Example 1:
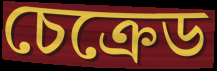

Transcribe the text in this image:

চেক্ৰেড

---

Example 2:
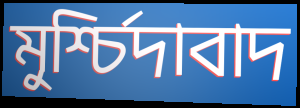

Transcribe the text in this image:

মুৰ্শ্চিদাবাদ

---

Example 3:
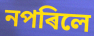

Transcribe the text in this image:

নপৰিলে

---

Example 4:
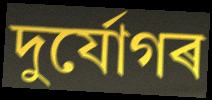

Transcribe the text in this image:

দুৰ্যোগৰ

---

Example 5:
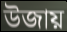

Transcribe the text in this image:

উজায়